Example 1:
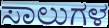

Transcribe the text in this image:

ಸಾಲುಗಳ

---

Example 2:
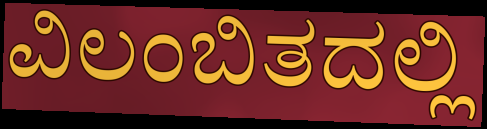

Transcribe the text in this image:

ವಿಲಂಬಿತದಲ್ಲಿ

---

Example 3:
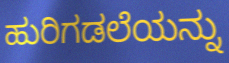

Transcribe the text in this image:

ಹುರಿಗಡಲೆಯನ್ನು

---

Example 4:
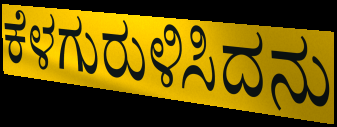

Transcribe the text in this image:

ಕೆಳಗುರುಳಿಸಿದನು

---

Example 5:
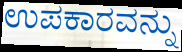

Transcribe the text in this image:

ಉಪಕಾರವನ್ನು